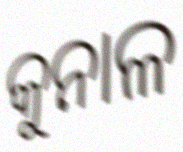
କୁନାଳ